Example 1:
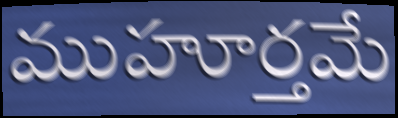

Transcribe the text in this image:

ముహూర్తమే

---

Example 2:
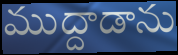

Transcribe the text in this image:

ముద్దాడాను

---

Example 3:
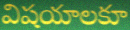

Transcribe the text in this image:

విషయాలకూ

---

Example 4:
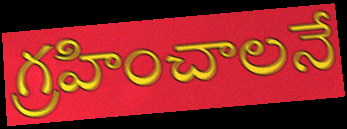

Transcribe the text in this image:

గ్రహించాలనే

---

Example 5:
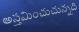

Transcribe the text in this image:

అస్తమించుచున్నది